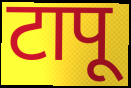
टापू